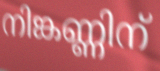
നിങ്കണ്ണിന്